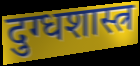
दुग्धशास्त्र